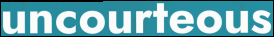
uncourteous